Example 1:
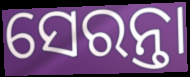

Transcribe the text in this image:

ସେରନ୍ତା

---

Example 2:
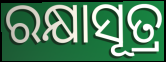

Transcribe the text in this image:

ରକ୍ଷାସୂତ୍ର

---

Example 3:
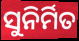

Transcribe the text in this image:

ସୁନିର୍ମିତ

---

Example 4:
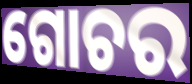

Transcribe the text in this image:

ଗୋଚର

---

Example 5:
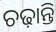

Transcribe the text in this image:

ଚଢ଼ାନ୍ତି